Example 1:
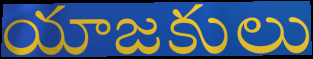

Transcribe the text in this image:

యాజకులు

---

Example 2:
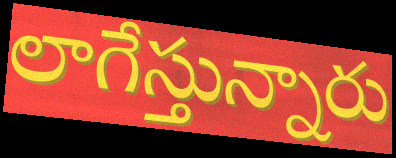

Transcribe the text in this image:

లాగేస్తున్నారు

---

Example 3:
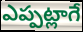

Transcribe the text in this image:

ఎప్పట్లాగే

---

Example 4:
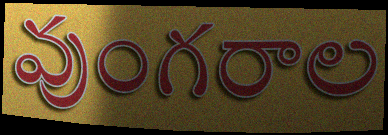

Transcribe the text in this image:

వుంగరాల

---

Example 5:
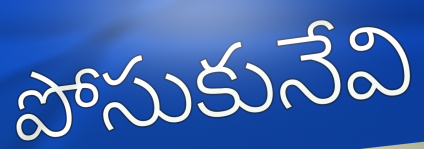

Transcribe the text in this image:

పోసుకునేవి